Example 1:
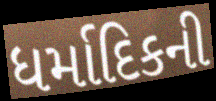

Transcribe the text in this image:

ધર્માદિકની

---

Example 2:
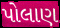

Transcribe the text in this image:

પોલાણ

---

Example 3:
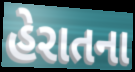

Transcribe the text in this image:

હેરાતના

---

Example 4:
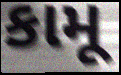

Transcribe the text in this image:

કામૂ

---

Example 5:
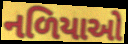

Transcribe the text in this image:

નળિયાઓ